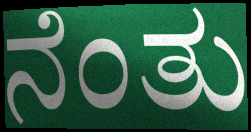
ನೆಂತು